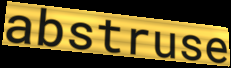
abstruse